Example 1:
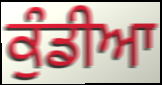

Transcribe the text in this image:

ਕੁੰਡੀਆ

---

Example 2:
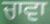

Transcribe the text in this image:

ਚਾਵਾ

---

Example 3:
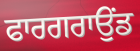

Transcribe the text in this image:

ਫਾਰਗਰਾਉਂਡ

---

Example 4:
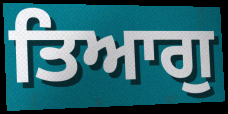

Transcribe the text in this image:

ਤਿਆਗੁ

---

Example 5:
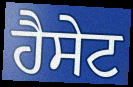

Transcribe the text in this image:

ਹੈਸੇਟ